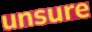
unsure